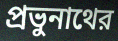
প্রভুনাথের